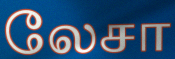
லேசா